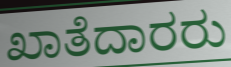
ಖಾತೆದಾರರು